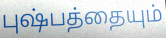
புஷ்பத்தையும்